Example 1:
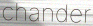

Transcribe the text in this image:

chander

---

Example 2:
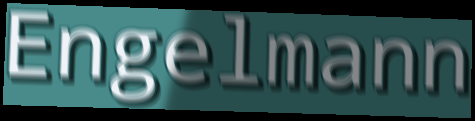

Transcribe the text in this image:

Engelmann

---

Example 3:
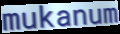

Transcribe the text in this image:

mukanum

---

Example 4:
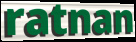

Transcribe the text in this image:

ratnan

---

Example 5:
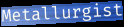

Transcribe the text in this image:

Metallurgist